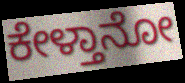
ಕೇಳ್ತಾನೋ